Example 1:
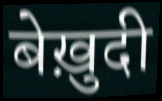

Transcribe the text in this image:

बेख़ुदी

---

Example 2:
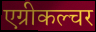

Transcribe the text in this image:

एग्रीकल्चर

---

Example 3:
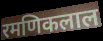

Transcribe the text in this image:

रमणिकलाल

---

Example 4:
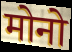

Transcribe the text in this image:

मोनो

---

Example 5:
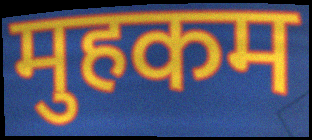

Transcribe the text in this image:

मुहकम